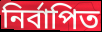
নিৰ্বাপিত